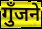
गुँजने